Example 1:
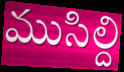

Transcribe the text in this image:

ముసిల్ది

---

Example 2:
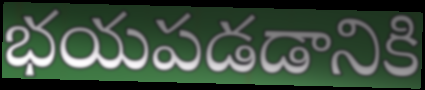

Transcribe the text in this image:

భయపడడానికి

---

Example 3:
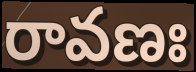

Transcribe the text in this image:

రావణః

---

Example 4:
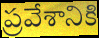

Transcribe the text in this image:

ప్రవేశానికి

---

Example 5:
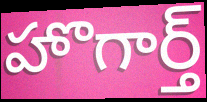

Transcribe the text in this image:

హొగార్త్